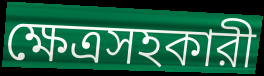
ক্ষেত্রসহকারী